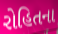
રોહિતના